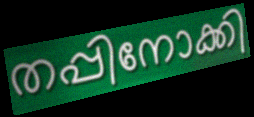
തപ്പിനോക്കി